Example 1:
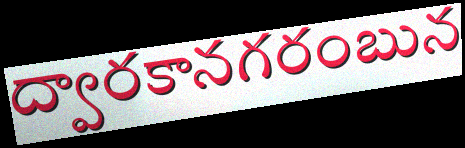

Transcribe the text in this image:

ద్వారకానగరంబున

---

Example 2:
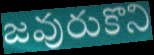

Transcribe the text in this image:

జవురుకొని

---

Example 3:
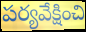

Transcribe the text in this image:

పర్యవేక్షించి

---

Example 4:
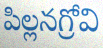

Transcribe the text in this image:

పిల్లనగ్రోవి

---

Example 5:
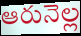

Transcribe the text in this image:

ఆరునెల్ల